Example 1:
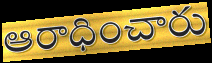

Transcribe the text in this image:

ఆరాధించారు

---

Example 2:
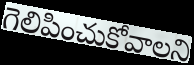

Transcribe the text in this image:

గెలిపించుకోవాలని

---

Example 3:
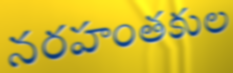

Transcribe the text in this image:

నరహంతకుల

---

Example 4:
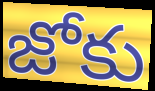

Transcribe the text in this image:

జోకు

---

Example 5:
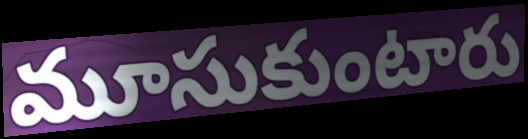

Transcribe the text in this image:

మూసుకుంటారు